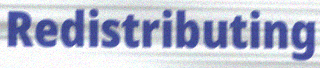
Redistributing